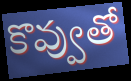
కొవ్వుతో